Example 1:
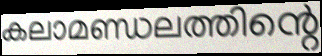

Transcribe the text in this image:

കലാമണ്ഡലത്തിന്റെ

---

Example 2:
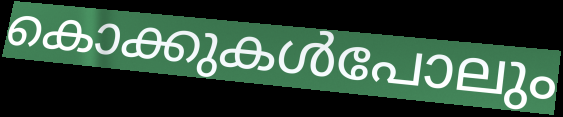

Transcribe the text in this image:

കൊക്കുകൾപോലും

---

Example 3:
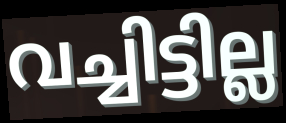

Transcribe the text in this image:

വച്ചിട്ടില്ല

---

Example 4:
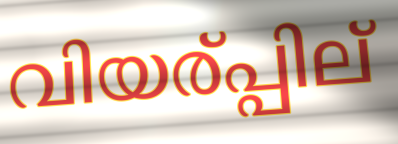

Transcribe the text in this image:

വിയര്പ്പില്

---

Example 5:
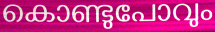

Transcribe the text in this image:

കൊണ്ടുപോവും